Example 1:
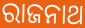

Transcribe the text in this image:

ରାଜନାଥ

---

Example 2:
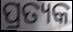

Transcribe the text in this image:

ପ୍ରତ୍ୟକ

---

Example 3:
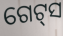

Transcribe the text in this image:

ଗେଟ୍‌ସ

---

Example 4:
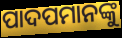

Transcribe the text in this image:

ପାଦପମାନଙ୍କୁ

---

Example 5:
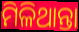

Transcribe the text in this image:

ମିଳିଥାନ୍ତା